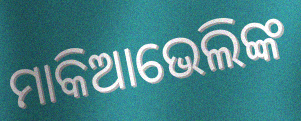
ମାକିଆଭେଲିଙ୍କ